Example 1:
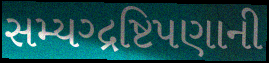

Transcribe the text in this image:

સમ્યગ્દ્રષ્ટિપણાની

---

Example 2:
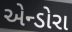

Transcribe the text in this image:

એન્ડોરા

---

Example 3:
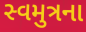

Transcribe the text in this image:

સ્વમુત્રના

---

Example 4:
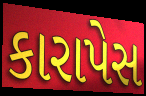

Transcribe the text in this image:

કારાપેસ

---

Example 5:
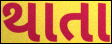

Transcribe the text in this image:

થાતા